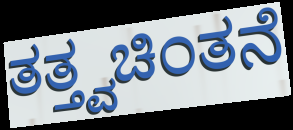
ತತ್ತ್ವಚಿಂತನೆ